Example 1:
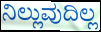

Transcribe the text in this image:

ನಿಲ್ಲುವುದಿಲ್ಲ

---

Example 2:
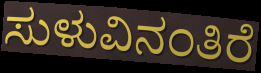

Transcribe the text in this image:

ಸುಳುವಿನಂತಿರೆ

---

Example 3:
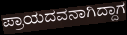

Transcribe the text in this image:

ಪ್ರಾಯದವನಾಗಿದ್ದಾಗ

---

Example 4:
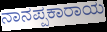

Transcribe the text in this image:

ನಾನಪ್ಪಕಾರಾಯ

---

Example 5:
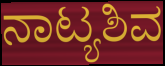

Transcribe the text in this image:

ನಾಟ್ಯಶಿವ